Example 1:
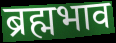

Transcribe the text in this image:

ब्रह्मभाव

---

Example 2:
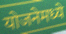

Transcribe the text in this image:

योजनेमध्ये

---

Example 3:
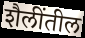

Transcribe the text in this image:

शैलींतील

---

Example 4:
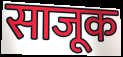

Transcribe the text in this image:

साजूक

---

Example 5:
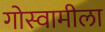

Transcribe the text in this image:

गोस्वामीला